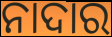
ନାଦାର